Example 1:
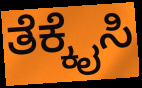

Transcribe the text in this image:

ತೆಕ್ಕೈಸಿ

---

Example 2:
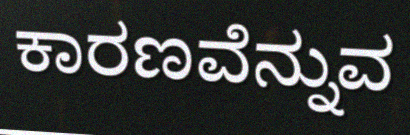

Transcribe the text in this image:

ಕಾರಣವೆನ್ನುವ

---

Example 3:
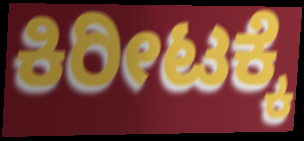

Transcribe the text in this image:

ಕಿರೀಟಕ್ಕೆ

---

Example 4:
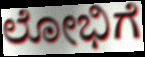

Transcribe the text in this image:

ಲೋಭಿಗೆ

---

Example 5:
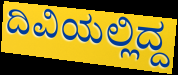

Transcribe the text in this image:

ದಿವಿಯಲ್ಲಿದ್ದ